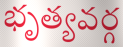
భృత్యవర్గ